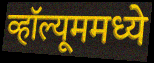
व्हॉल्यूममध्ये